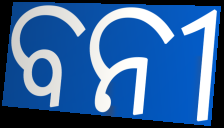
ବନୀ